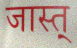
जास्त्